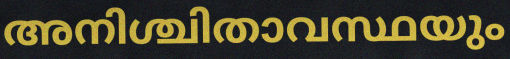
അനിശ്ചിതാവസ്ഥയും